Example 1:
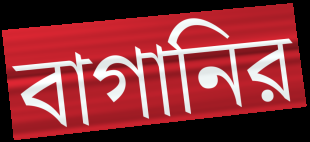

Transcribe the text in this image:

বাগানির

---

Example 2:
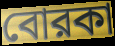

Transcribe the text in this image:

বোরকা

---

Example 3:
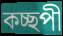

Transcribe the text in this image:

কচ্ছপী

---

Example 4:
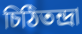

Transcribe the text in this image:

চিঠিতন্দ্রা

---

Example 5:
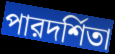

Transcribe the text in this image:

পারদর্শিতা